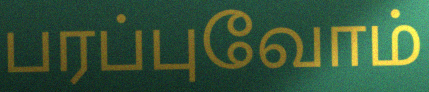
பரப்புவோம்